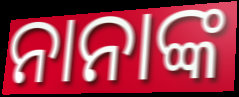
ନାନାଙ୍କ